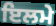
ਇਲਮੇ